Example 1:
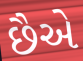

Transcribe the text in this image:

છૈએ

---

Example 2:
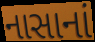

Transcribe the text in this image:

નાસાનાં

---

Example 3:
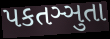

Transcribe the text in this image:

પકતઞ્ઞુતા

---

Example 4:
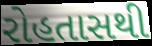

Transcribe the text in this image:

રોહતાસથી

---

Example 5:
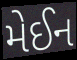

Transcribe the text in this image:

મેઈન